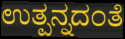
ಉತ್ಪನ್ನದಂತೆ